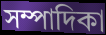
সম্পাদিকা